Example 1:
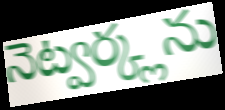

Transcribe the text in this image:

నెట్వర్క్లను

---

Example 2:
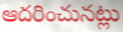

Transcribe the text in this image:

ఆదరించునట్లు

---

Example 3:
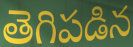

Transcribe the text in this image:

తెగిపడిన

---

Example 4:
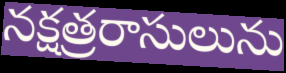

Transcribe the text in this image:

నక్షత్రరాసులును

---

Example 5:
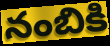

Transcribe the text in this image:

నంబికి